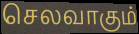
செலவாகும்